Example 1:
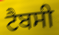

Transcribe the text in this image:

ਟੈਬਸੀ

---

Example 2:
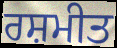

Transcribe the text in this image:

ਰਸ਼ਮੀਤ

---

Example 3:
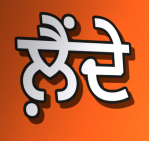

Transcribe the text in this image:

ਲ਼ੈਂਦੇ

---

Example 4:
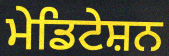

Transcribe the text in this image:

ਮੇਡਿਟੇਸ਼ਨ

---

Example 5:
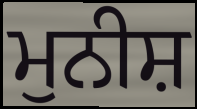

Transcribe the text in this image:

ਮੁਨੀਸ਼